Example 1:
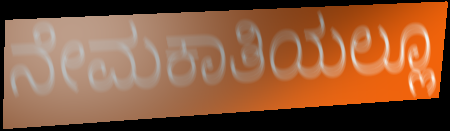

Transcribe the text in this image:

ನೇಮಕಾತಿಯಲ್ಲೂ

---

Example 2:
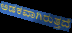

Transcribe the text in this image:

ಅಡಕವಾಗಿರುತ್ತದೆ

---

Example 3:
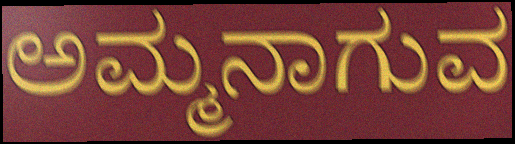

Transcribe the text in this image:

ಅಮ್ಮನಾಗುವ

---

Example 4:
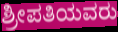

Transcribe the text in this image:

ಶ್ರೀಪತಿಯವರು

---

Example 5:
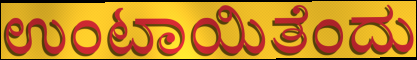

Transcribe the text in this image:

ಉಂಟಾಯಿತೆಂದು